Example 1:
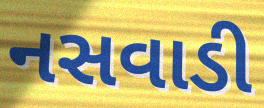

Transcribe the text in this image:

નસવાડી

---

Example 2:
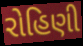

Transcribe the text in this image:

રોહિણી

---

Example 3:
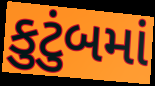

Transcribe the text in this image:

કુટુંબમાં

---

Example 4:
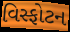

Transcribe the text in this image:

વિસ્ફોટન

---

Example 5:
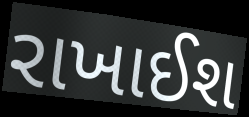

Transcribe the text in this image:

રાખાઈશ